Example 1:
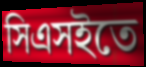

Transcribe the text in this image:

সিএসইতে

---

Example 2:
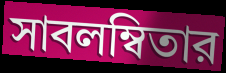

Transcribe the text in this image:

সাবলম্বিতার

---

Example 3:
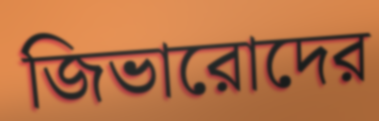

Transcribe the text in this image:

জিভারোদের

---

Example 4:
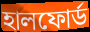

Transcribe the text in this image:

হালফোর্ড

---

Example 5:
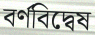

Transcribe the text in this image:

বর্ণবিদ্বেষ